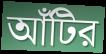
আঁটির